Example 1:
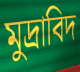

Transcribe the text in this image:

মুদ্ৰাবিদ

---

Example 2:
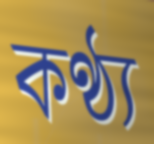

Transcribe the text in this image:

কণ্ঠ্য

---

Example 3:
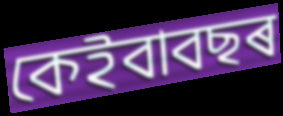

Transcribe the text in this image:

কেইবাবছৰ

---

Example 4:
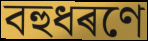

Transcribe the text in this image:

বহুধৰণে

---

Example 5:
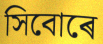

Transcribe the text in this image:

সিবোৰে